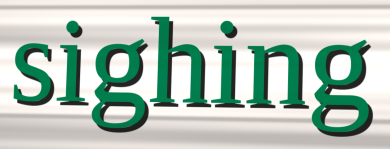
sighing